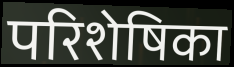
परिशेषिका